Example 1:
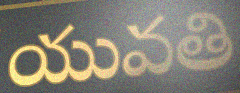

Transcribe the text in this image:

యువతి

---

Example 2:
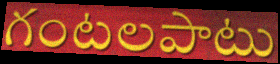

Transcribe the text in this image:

గంటలపాటు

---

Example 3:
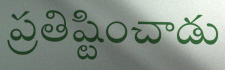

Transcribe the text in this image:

ప్రతిష్టించాడు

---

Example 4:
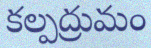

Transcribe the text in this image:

కల్పద్రుమం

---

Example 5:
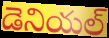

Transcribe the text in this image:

డెనియల్